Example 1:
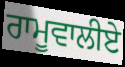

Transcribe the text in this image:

ਰਾਮੂਵਾਲੀਏ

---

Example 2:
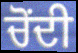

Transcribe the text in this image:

ਚੋੰਦੀ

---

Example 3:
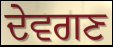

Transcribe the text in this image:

ਦੇਵਗਣ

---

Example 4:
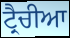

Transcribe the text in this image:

ਟ੍ਰੈਚੀਆ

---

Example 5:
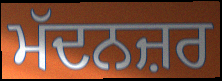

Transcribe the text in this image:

ਮੱਦਨਜ਼ਰ